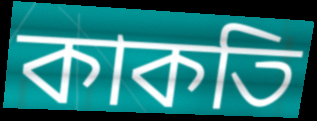
কাকতি